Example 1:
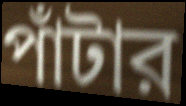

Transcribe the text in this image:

পাঁটার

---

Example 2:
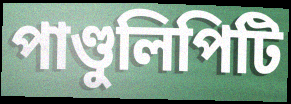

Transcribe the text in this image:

পাণ্ডুলিপিটি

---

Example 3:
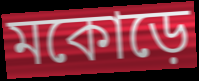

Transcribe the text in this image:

মকোড়ে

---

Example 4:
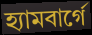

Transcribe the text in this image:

হ্যামবার্গে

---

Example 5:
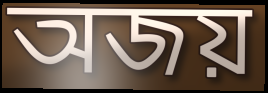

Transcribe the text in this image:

অজয়